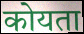
कोयता